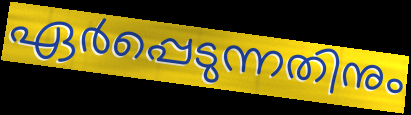
ഏർപ്പെടുന്നതിനും